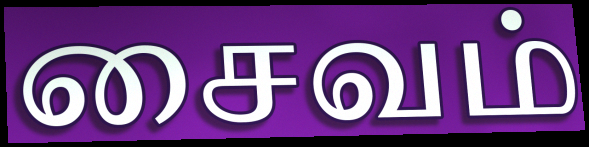
சைவம்